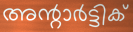
അന്റാർട്ടിക്